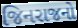
જિનરાજનો